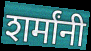
शर्मांनी